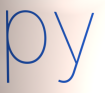
py